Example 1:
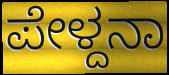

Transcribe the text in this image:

ಪೇಳ್ದನಾ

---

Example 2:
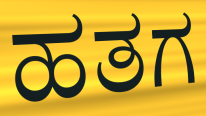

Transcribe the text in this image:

ಹತಗ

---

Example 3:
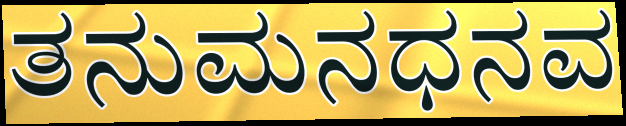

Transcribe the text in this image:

ತನುಮನಧನವ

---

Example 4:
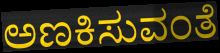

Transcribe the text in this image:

ಅಣಕಿಸುವಂತೆ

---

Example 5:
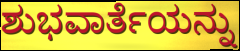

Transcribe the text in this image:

ಶುಭವಾರ್ತೆಯನ್ನು